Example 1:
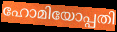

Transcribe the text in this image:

ഹോമിയോപ്പതി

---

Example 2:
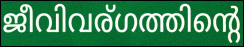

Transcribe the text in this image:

ജീവിവര്ഗത്തിന്റെ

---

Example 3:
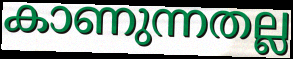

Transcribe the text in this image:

കാണുന്നതല്ല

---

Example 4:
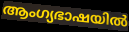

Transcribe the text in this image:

ആംഗ്യഭാഷയിൽ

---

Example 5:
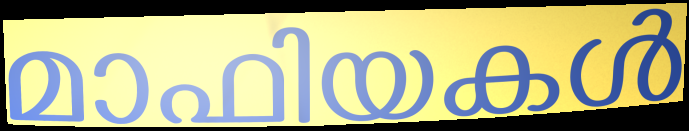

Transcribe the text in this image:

മാഫിയകൾ